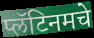
प्लॅटिनमचे